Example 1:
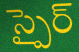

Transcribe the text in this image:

స్పైర్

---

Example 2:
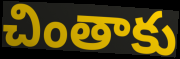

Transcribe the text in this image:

చింతాకు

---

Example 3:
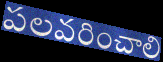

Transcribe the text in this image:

పలవరించాలి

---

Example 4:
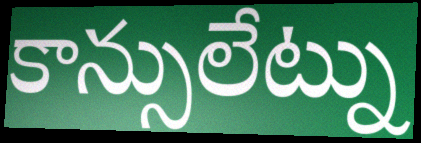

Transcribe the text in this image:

కాన్సులేట్ను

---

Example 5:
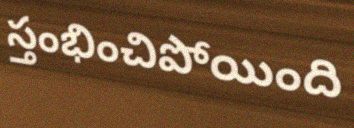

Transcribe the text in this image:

స్తంభించిపోయింది